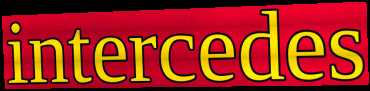
intercedes